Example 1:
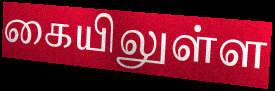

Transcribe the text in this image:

கையிலுள்ள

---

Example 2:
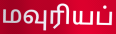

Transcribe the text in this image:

மவுரியப்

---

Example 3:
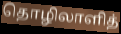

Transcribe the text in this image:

தொழிலாளித்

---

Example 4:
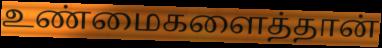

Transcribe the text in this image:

உண்மைகளைத்தான்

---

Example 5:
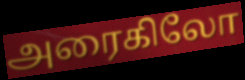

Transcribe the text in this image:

அரைகிலோ